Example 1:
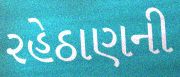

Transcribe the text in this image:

રહેઠાણની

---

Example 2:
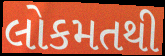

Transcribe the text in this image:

લોકમતથી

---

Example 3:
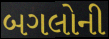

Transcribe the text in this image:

બગલોની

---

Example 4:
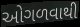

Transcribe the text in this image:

ઓગળવાથી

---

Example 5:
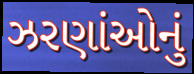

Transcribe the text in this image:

ઝરણાંઓનું